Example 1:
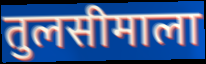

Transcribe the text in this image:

तुलसीमाला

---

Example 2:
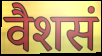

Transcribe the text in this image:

वैशसं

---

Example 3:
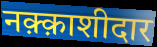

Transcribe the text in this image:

नक़्क़ाशीदार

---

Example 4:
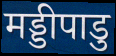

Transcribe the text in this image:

मड्डीपाडु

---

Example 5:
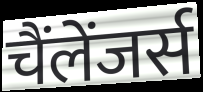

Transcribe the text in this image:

चैंलेंजर्स